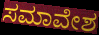
ಸಮಾವೇಶ